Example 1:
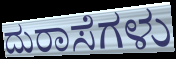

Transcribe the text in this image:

ದುರಾಸೆಗಳು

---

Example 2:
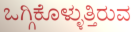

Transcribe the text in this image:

ಒಗ್ಗಿಕೊಳ್ಳುತ್ತಿರುವ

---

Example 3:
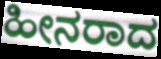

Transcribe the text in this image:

ಹೀನರಾದ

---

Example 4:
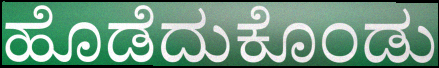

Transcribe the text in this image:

ಹೊಡೆದುಕೊಂಡು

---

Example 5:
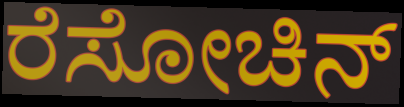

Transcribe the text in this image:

ರೆಸೋಚಿನ್